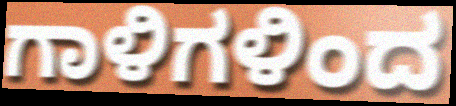
ಗಾಳಿಗಳಿಂದ